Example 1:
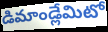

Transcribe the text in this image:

డిమాండ్లేమిటో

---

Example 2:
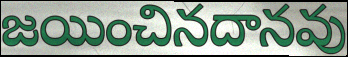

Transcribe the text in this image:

జయించినదానవు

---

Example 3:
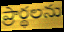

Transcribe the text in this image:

ప్రార్థలను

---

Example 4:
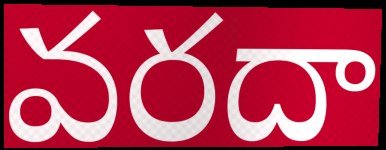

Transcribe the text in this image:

వరదా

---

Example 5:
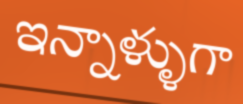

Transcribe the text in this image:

ఇన్నాళ్ళుగా